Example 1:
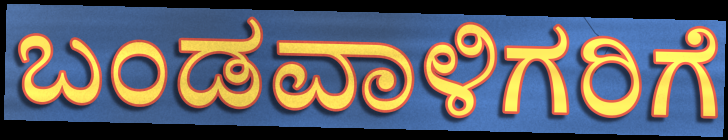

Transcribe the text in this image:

ಬಂಡವಾಳಿಗರಿಗೆ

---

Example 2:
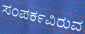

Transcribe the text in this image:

ಸಂಪರ್ಕವಿರುವ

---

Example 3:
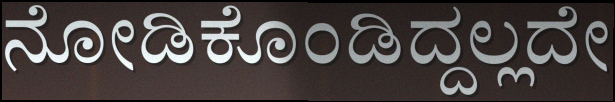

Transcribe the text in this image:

ನೋಡಿಕೊಂಡಿದ್ದಲ್ಲದೇ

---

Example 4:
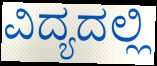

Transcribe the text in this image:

ವಿದ್ಯದಲ್ಲಿ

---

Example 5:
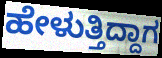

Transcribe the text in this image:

ಹೇಳುತ್ತಿದ್ದಾಗ